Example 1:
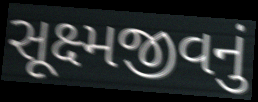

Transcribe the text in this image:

સૂક્ષ્મજીવનું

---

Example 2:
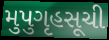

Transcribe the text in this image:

મુપુગૃહસૂચી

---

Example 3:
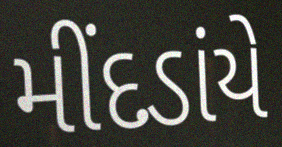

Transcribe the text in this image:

મીંદડાંયે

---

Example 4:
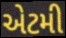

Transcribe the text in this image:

એટમી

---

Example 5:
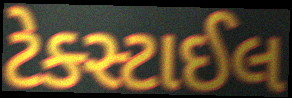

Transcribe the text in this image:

ટેક્સ્ટાઈલ